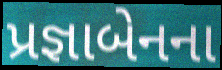
પ્રજ્ઞાબેનના